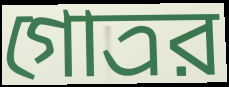
গোত্রর